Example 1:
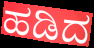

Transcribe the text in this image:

ಹಡಿದ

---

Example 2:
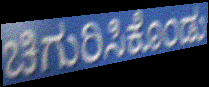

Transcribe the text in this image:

ಚಿಗುರಿಸಿಕೊಂಡು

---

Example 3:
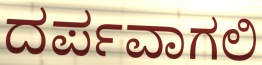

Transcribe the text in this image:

ದರ್ಪವಾಗಲಿ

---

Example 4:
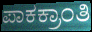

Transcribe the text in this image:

ಪಾಕಕ್ರಾಂತಿ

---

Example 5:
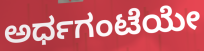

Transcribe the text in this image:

ಅರ್ಧಗಂಟೆಯೇ